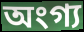
অংগ্য